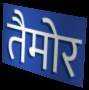
तैमोर